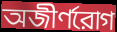
অজীর্ণরোগ